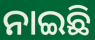
ନାଇଛି